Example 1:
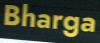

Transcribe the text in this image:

Bharga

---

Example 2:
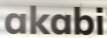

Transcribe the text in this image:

akabi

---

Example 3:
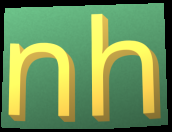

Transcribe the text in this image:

nh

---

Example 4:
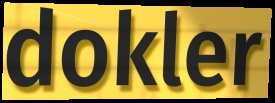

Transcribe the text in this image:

dokler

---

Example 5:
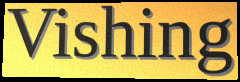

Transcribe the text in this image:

Vishing